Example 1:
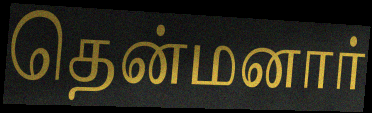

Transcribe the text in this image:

தென்மனார்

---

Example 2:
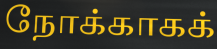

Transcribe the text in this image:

நோக்காகக்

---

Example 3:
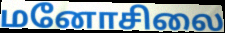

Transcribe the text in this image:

மனோசிலை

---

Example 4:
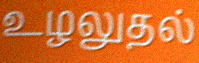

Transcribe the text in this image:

உழலுதல்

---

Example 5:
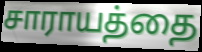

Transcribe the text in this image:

சாராயத்தை